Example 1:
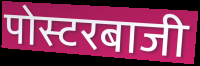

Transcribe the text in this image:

पोस्टरबाजी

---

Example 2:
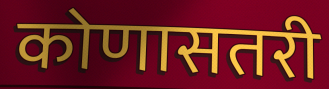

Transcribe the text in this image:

कोणासतरी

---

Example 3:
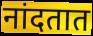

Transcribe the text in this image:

नांदतात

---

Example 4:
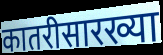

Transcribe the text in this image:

कातरीसारख्या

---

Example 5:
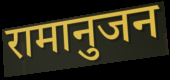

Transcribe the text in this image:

रामानुजन